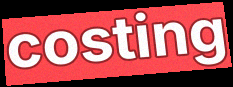
costing